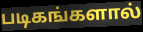
படிகங்களால்